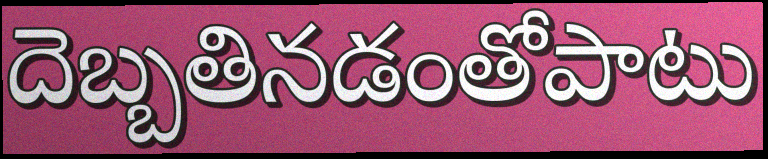
దెబ్బతినడంతోపాటు